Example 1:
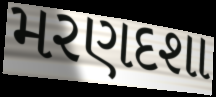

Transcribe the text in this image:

મરણદશા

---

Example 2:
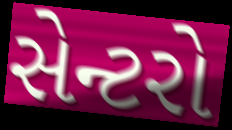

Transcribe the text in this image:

સેન્ટરો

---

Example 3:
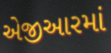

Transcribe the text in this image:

એજીઆરમાં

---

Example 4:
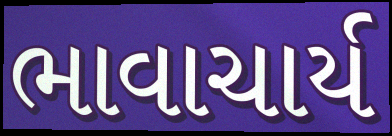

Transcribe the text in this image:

ભાવાચાર્ય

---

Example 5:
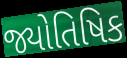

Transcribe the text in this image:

જ્યોતિષિક